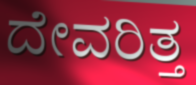
ದೇವರಿತ್ತ